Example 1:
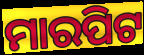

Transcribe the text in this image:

ମାରପିଟ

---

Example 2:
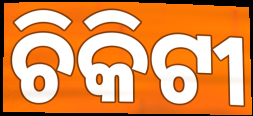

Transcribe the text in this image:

ଚିକିଟୀ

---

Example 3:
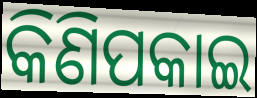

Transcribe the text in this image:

କିଣିପକାଇ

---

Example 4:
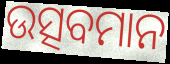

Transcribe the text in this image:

ଉତ୍ସବମାନ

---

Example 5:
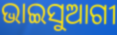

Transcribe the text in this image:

ଭାଇସୁଆଗୀ